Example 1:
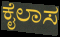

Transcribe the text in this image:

ಕೈಲಾಸ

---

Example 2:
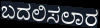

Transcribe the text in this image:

ಬದಲಿಸಲಾರ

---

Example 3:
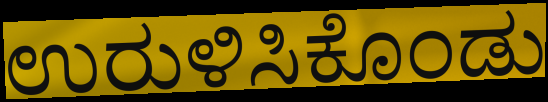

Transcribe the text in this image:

ಉರುಳಿಸಿಕೊಂಡು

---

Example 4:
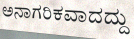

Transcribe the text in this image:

ಅನಾಗರಿಕವಾದದ್ದು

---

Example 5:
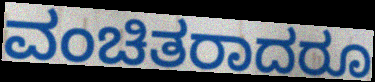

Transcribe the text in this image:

ವಂಚಿತರಾದರೂ